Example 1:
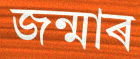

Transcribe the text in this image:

জন্মাৰ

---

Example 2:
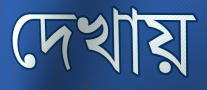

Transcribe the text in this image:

দেখায়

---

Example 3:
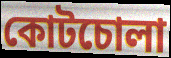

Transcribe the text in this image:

কোটচোলা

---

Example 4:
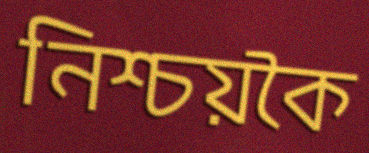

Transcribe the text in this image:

নিশ্চয়কৈ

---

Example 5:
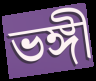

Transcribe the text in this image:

ভঙ্গী